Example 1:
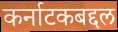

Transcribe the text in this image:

कर्नाटकबद्दल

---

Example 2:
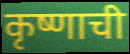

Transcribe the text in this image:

कृष्णाची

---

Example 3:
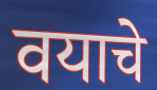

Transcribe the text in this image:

वयाचे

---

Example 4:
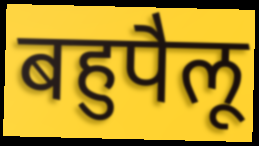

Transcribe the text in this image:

बहुपैलू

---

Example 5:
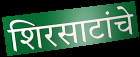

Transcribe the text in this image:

शिरसाटांचे